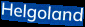
Helgoland